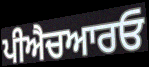
ਪੀਐਚਆਰਓ